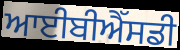
ਆਈਬੀਐੱਸਡੀ